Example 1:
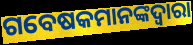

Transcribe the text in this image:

ଗବେଷକମାନଙ୍କଦ୍ୱାରା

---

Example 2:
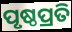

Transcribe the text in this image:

ପୃଷ୍ଠପ୍ରତି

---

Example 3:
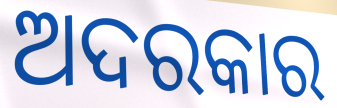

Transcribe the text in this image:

ଅଦରକାର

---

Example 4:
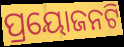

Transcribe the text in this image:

ପ୍ରୟୋଜନଟି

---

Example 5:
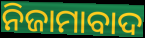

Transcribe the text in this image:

ନିଜାମାବାଦ